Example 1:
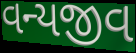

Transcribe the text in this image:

વન્યજીવ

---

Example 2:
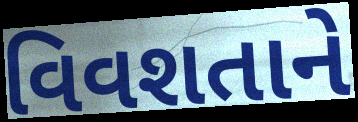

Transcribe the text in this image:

વિવશતાને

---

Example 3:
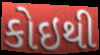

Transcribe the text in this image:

કોઇથી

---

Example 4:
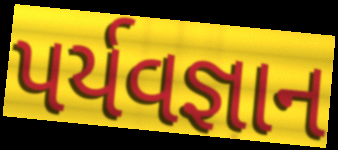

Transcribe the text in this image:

પર્યવજ્ઞાન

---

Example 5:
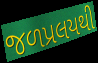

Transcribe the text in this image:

જળપ્રલયથી